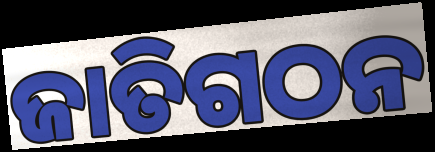
ଜାତିଗଠନ